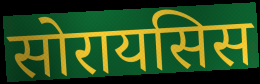
सोरायसिस